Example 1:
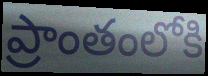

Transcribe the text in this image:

ప్రాంతంలోకి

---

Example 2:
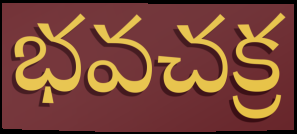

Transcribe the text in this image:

భవచక్ర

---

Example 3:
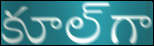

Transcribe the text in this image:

కూల్‌గా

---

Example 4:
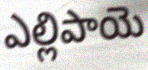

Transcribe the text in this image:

ఎల్లిపాయె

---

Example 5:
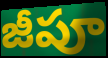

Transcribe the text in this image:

జీపూ